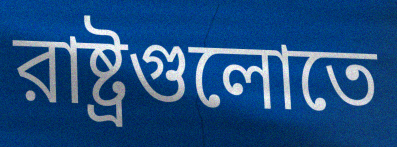
রাষ্ট্রগুলোতে